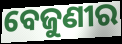
ବେଜୁଣୀର